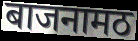
बाजनामठ